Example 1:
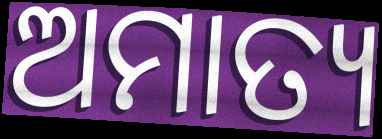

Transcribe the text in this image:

ଅମାତ୍ୟ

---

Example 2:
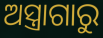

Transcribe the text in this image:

ଅସ୍ତ୍ରାଗାରୁ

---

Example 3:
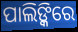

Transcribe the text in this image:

ପାଲିଙ୍କିରେ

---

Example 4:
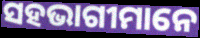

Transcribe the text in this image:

ସହଭାଗୀମାନେ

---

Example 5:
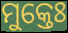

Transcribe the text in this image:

ମୁକ୍ତେଃ